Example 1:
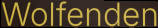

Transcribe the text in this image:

Wolfenden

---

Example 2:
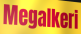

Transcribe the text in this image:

Megalkeri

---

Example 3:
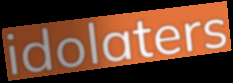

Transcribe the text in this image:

idolaters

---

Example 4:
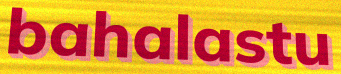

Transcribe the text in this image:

bahalastu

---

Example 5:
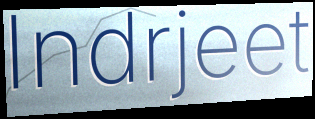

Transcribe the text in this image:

Indrjeet